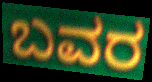
ಬವರ